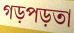
গড়পড়তা